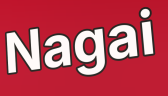
Nagai